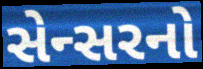
સેન્સરનો